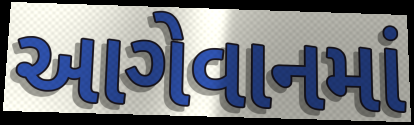
આગેવાનમાં